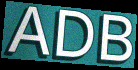
ADB